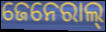
ଜେନେରାଲ୍